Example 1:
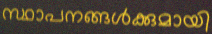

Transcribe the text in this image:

സ്ഥാപനങ്ങൾക്കുമായി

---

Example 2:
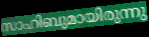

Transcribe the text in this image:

സാഹിബുമായിരുന്നു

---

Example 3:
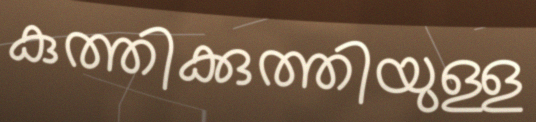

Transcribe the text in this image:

കുത്തിക്കുത്തിയുള്ള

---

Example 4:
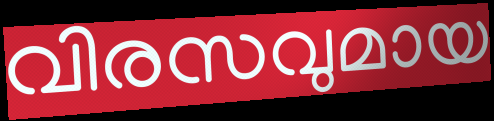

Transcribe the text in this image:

വിരസവുമായ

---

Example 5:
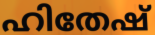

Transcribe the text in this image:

ഹിതേഷ്